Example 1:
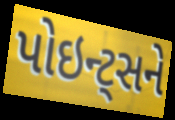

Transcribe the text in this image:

પોઇન્ટ્સને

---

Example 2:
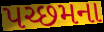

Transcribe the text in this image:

પચ્છમના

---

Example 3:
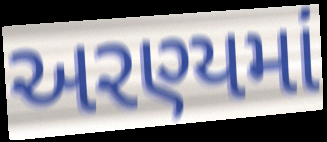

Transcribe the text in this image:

અરણ્યમાં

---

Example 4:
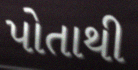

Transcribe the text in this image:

પોતાથી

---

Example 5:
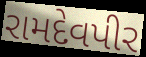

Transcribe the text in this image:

રામદેવપીર